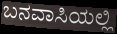
ಬನವಾಸಿಯಲ್ಲಿ